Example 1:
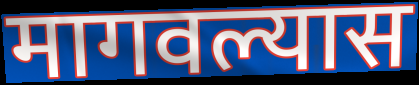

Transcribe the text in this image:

मागवल्यास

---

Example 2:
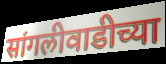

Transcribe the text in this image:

सांगलीवाडीच्या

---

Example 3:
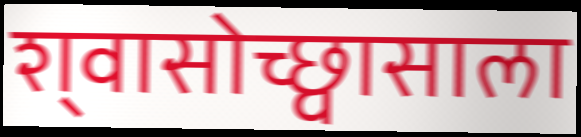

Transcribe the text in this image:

श्वासोच्छ्वासाला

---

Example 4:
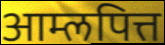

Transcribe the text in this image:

आम्लपित्त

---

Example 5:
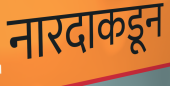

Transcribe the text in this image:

नारदाकडून